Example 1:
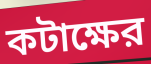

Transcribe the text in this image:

কটাক্ষের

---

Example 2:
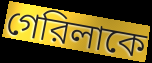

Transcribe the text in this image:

গেরিলাকে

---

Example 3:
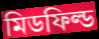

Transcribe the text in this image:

মিডফিল্ড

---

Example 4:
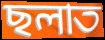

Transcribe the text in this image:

ছলাত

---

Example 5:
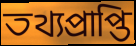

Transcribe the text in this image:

তথ্যপ্রাপ্তি